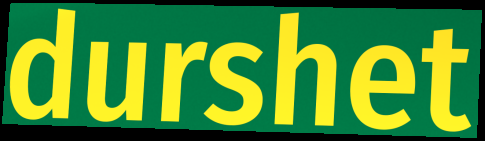
durshet